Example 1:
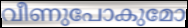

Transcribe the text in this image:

വീണുപോകുമോ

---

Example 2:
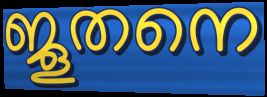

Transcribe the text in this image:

ജൂതനെ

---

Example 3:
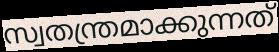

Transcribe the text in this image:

സ്വതന്ത്രമാക്കുന്നത്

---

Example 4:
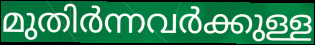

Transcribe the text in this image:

മുതിർന്നവർക്കുള്ള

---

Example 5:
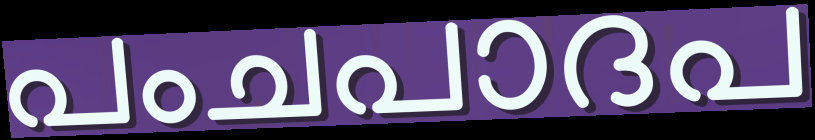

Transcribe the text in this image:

പംചപാദപ